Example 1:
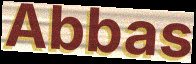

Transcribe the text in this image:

Abbas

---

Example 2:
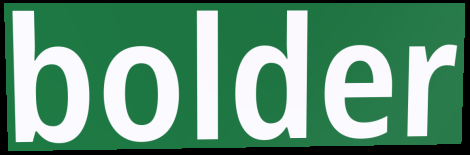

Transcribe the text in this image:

bolder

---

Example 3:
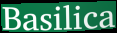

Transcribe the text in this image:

Basilica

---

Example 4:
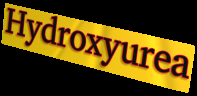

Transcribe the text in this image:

Hydroxyurea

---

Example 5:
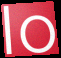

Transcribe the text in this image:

lo